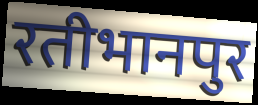
रतीभानपुर